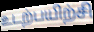
உடற்பயிற்சி